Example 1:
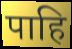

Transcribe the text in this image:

पाहि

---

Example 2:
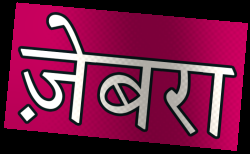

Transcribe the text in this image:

ज़ेबरा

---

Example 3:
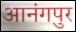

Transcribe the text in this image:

आनंगपुर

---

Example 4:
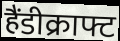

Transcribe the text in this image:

हैंडीक्राफ्ट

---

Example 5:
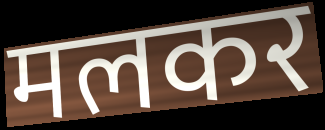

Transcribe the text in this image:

मलकर